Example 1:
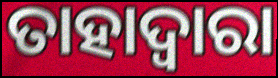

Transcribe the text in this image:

ତାହାଦ୍ଵାରା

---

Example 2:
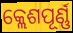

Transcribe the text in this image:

କ୍ଲେଶପୂର୍ଣ୍ଣ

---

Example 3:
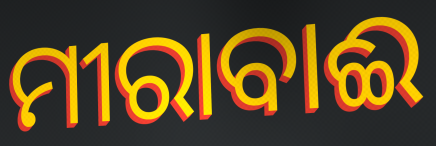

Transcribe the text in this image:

ମୀରାବାଈ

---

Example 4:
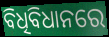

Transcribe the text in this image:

ବିଧିବିଧାନରେ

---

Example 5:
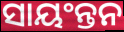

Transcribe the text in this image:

ସାୟଂନ୍ତନ